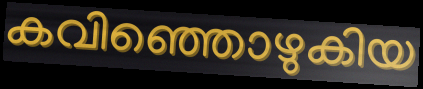
കവിഞ്ഞൊഴുകിയ